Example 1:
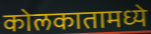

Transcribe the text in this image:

कोलकातामध्ये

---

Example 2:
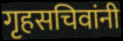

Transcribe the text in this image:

गृहसचिवांनी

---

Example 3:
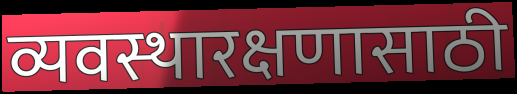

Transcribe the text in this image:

व्यवस्थारक्षणासाठी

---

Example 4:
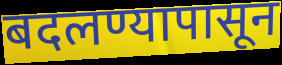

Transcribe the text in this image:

बदलण्यापासून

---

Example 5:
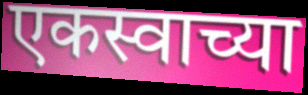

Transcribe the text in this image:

एकस्वाच्या